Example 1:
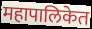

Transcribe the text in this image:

महापालिकेत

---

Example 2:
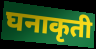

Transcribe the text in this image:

घनाकृती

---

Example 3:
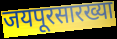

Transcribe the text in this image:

जयपूरसारख्या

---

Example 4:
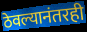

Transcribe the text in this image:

ठेवल्यानंतरही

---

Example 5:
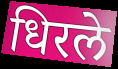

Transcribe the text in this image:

धिरले